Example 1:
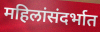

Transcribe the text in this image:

महिलांसंदर्भात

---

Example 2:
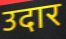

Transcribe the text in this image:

उदार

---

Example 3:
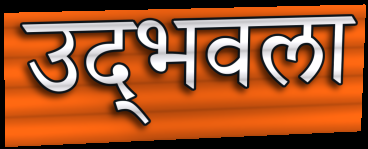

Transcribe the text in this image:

उद्‌भवला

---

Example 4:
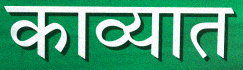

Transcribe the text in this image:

काव्यात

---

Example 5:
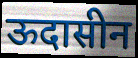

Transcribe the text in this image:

ऊदासीन